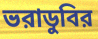
ভরাডুবির